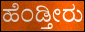
ಹೆಂಡ್ತೀರು